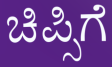
ಚಿಪ್ಸಿಗೆ